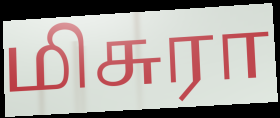
மிசுரா